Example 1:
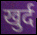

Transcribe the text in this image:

खुर्द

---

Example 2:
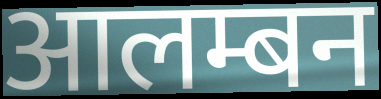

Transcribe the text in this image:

आलम्बन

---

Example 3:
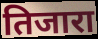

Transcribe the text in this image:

तिजारा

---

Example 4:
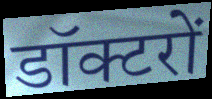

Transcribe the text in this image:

डॉक्टरों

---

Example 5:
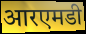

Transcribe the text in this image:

आरएमडी